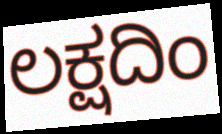
ಲಕ್ಷದಿಂ